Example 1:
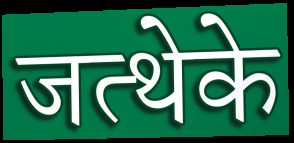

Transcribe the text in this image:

जत्थेके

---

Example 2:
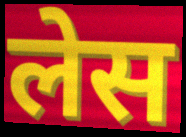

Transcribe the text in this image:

लेस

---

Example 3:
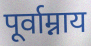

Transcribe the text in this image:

पूर्वाम्नाय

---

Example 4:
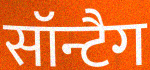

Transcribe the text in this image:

सॉन्टैग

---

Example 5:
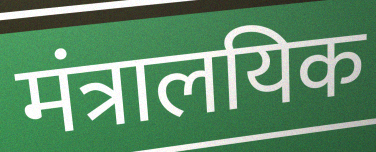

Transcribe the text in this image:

मंत्रालयिक